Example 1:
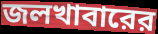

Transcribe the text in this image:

জলখাবারের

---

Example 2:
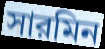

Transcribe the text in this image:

সারমিন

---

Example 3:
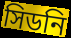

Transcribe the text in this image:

সিডনি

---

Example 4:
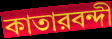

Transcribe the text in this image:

কাতারবন্দী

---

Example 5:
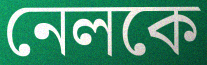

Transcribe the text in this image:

নেলকে